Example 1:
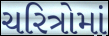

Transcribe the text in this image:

ચરિત્રોમાં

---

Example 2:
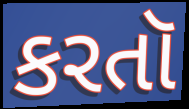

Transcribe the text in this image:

કરતૉ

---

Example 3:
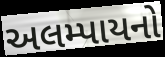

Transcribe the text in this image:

અલમ્પાયનો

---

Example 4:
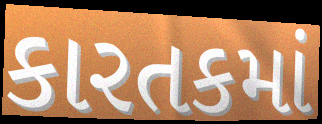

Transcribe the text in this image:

કારતકમાં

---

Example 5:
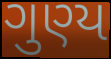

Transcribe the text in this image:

ગુણ્ય